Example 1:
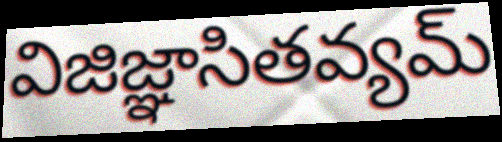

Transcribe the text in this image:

విజిజ్ఞాసితవ్యమ్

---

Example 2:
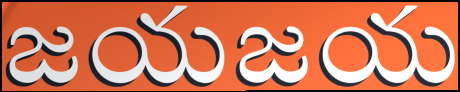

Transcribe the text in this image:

జయజయ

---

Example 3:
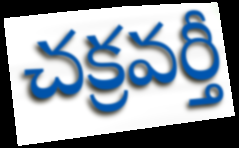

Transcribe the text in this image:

చక్రవర్తీ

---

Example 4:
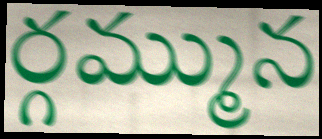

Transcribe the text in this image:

ర్గమ్మున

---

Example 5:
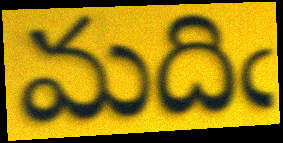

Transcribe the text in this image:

మదిఁ